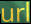
url